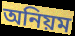
অনিয়ম